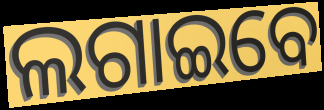
ଲଗାଇବେ